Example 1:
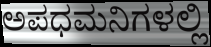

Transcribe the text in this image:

ಅಪಧಮನಿಗಳಲ್ಲಿ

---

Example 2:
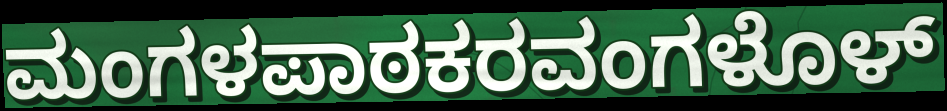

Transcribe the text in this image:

ಮಂಗಳಪಾಠಕರವಂಗಳೊಳ್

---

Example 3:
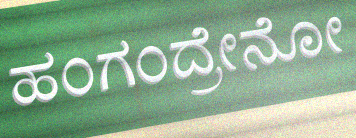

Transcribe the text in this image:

ಹಂಗಂದ್ರೇನೋ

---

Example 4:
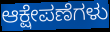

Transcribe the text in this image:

ಆಕ್ಷೇಪಣೆಗಳು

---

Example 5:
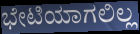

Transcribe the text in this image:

ಭೇಟಿಯಾಗಲಿಲ್ಲ